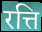
रत्ति